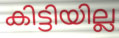
കിട്ടിയില്ല